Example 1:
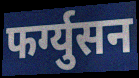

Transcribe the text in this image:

फर्ग्युसन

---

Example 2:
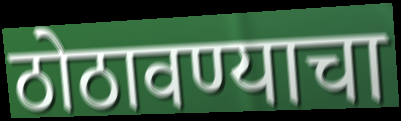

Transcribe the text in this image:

ठोठावण्याचा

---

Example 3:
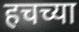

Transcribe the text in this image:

हचच्या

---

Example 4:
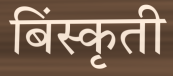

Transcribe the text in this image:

बिंस्कृती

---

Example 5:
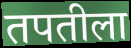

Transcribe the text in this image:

तपतीला